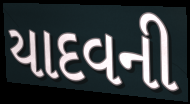
યાદવની